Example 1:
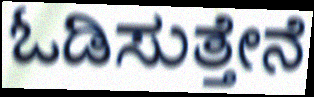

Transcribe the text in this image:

ಓಡಿಸುತ್ತೇನೆ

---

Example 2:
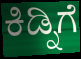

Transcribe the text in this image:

ಕಿಡ್ನಿಗೆ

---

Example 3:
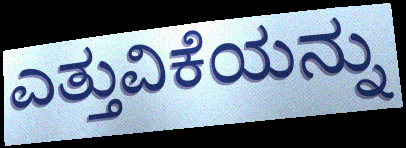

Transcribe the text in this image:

ಎತ್ತುವಿಕೆಯನ್ನು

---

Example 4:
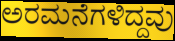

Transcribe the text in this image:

ಅರಮನೆಗಳಿದ್ದವು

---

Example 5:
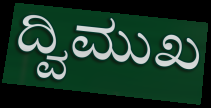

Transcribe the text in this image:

ದ್ವಿಮುಖ